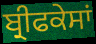
ਬ੍ਰੀਫਕੇਸਾਂ